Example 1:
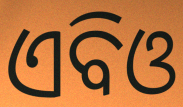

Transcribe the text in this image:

ଏବିଓ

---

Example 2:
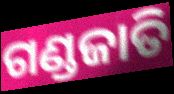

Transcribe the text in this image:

ଗଣ୍ଡଜାତି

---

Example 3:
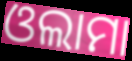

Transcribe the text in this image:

ଓଲାମା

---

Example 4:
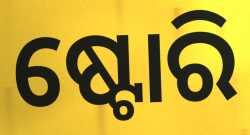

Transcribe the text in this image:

ଷ୍ଟୋରି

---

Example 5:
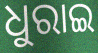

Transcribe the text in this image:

ଧୁରାଇ